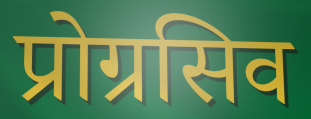
प्रोग्रसिव